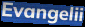
Evangelii